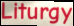
Liturgy